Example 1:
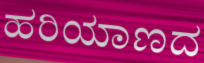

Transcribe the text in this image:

ಹರಿಯಾಣದ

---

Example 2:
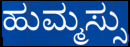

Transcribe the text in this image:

ಹುಮ್ಮಸ್ಸು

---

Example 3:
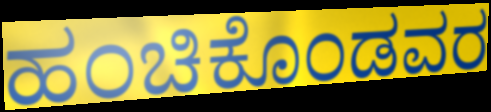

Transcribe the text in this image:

ಹಂಚಿಕೊಂಡವರ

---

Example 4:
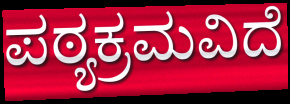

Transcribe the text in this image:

ಪಠ್ಯಕ್ರಮವಿದೆ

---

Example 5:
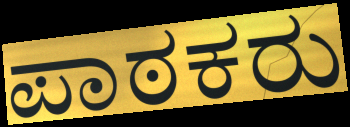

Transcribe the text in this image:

ಪಾಠಕರು